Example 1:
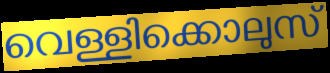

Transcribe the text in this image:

വെള്ളിക്കൊലുസ്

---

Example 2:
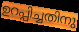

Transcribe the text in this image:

ഉറപ്പിച്ചതിനു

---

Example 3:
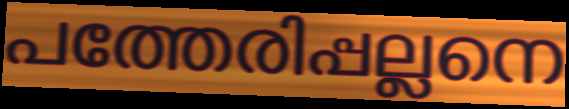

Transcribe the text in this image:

പത്തേരിപ്പല്ലനെ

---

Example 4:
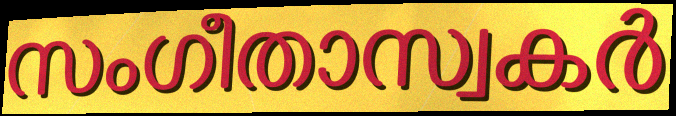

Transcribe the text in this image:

സംഗീതാസ്വകർ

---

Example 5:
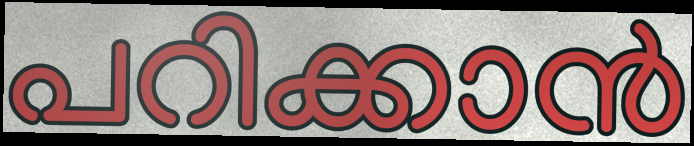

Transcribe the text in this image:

പറിക്കാൻ